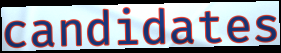
candidates